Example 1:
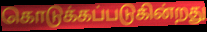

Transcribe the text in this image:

கொடுக்கப்படுகின்றது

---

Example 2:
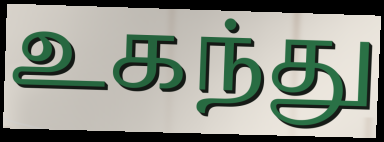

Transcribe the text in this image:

உகந்து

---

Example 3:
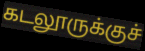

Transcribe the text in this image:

கடலூருக்குச்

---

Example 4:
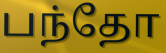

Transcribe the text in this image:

பந்தோ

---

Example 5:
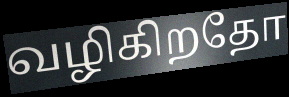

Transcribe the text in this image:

வழிகிறதோ